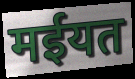
मईयत